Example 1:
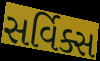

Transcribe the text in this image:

સર્વિક્સ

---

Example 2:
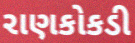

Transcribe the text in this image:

રાણકોકડી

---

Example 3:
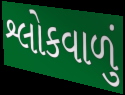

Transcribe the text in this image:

શ્લોકવાળું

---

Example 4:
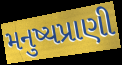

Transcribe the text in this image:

મનુષ્યપ્રાણી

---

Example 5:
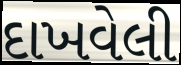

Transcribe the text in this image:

દાખવેલી